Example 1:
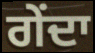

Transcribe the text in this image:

ਗੇਂਦਾ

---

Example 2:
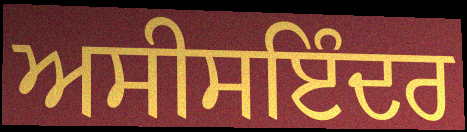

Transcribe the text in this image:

ਅਸੀਸਇੰਦਰ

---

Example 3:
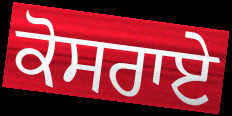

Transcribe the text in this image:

ਕੋਸਰਾਏ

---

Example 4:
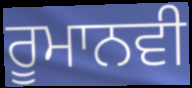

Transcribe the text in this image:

ਰੂਮਾਨਵੀ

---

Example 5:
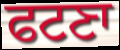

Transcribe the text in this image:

ਫਟਣਾ